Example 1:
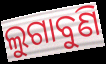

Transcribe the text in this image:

ଲୁଗାବୁଣି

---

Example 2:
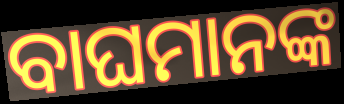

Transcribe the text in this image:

ବାଘମାନଙ୍କ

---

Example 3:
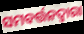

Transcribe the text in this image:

ସମବର୍ତ୍ତନଦ୍ୱାରା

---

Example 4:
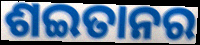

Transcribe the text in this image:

ଶଇତାନର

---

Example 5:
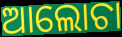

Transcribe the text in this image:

ଆଲୋଚା